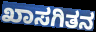
ಖಾಸಗಿತನ